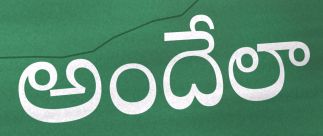
అందేలా